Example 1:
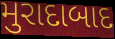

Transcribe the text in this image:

મુરાદાબાદ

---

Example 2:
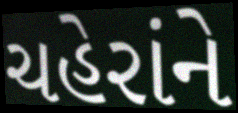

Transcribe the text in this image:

ચહેરાંને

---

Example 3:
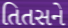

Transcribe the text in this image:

તિતસને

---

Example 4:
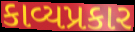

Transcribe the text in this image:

કાવ્યપ્રકાર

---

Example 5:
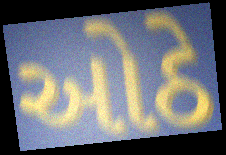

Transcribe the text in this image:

ઓઠે